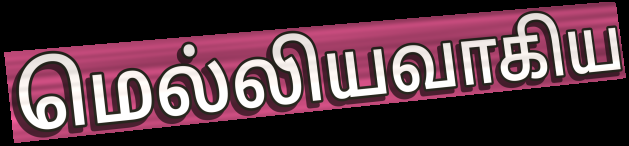
மெல்லியவாகிய